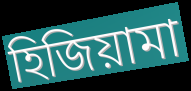
হিজিয়ামা